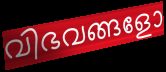
വിഭവങ്ങളോ